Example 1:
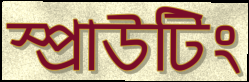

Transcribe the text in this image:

স্প্রাউটিং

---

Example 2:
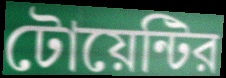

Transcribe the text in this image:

টোয়েন্টির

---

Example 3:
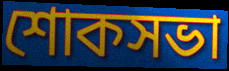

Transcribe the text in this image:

শোকসভা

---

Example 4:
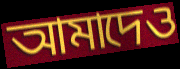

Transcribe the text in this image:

আমাদেও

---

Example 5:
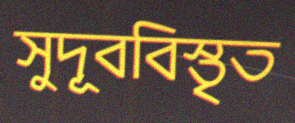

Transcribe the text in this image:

সুদূববিস্তৃত